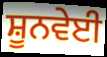
ਸ਼ੂਨਵੇਈ